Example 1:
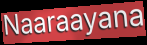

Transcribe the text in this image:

Naaraayana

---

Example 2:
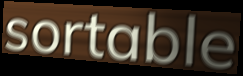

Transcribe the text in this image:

sortable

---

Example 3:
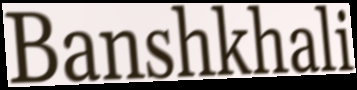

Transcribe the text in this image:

Banshkhali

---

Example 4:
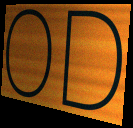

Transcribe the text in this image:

OD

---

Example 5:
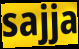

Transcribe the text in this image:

sajja